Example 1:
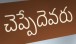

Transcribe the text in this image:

చెప్పేదెవరు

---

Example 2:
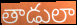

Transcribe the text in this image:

తాడులా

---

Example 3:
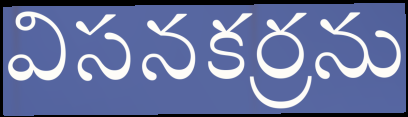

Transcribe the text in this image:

విసనకర్రను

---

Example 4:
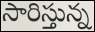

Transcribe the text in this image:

సారిస్తున్న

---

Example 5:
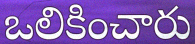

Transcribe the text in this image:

ఒలికించారు